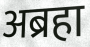
अब्रहा